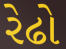
રેઢો